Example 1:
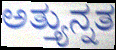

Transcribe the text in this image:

ಅತ್ತ್ಯುನ್ನತ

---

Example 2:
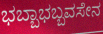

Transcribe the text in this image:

ಭಬ್ಬಾಭಬ್ಬವಸೇನ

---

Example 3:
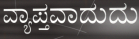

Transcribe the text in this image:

ವ್ಯಾಪ್ತವಾದುದು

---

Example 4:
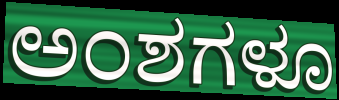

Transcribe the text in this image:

ಅಂಶಗಳೂ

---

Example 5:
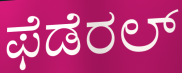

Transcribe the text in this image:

ಫೆಡೆರಲ್